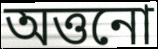
অত্তনো